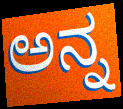
ಅನ್ನ